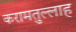
करामतुल्लाह